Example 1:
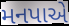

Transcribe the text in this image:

મનપાએ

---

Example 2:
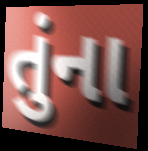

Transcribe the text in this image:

તુંના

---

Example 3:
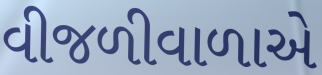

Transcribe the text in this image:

વીજળીવાળાએ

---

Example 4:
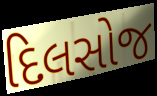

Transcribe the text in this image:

દિલસોજ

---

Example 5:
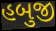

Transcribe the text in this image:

હબુજી